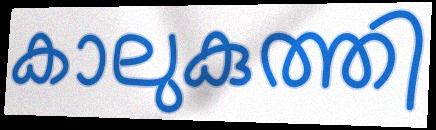
കാലുകുത്തി